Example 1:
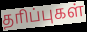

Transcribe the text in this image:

தரிப்புகள்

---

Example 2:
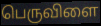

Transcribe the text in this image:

பெருவிளை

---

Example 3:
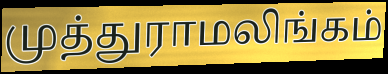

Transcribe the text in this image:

முத்துராமலிங்கம்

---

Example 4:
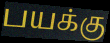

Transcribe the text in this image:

பயக்கு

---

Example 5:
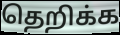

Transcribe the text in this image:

தெறிக்க